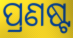
ପ୍ରଣଷ୍ଟ